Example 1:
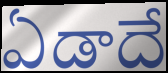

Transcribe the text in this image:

ఏడాదే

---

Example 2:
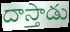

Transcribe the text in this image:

దాస్తాడు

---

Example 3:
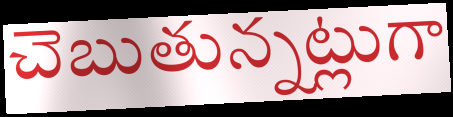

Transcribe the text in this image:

చెబుతున్నట్లుగా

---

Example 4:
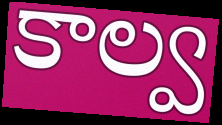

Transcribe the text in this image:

కాల్వ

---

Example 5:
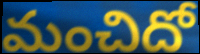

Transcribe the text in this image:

మంచిదో